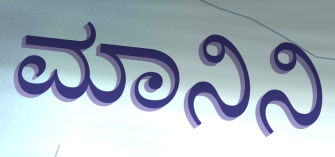
ಮಾನಿನಿ